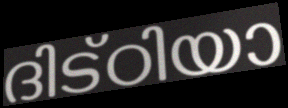
ദിട്ഠിയാ